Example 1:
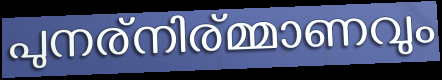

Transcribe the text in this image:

പുനര്നിര്മ്മാണവും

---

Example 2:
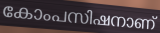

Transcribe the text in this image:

കോംപസിഷനാണ്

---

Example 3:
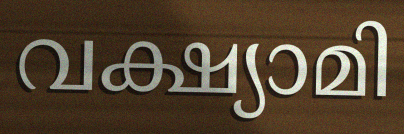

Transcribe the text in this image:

വക്ഷ്യാമി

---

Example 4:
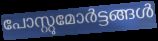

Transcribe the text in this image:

പോസ്റ്റുമോർട്ടങ്ങൾ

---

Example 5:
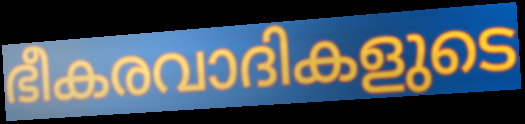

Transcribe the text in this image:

ഭീകരവാദികളുടെ